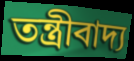
তন্ত্ৰীবাদ্য